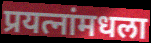
प्रयत्नांमधला